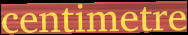
centimetre